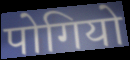
पोगियो